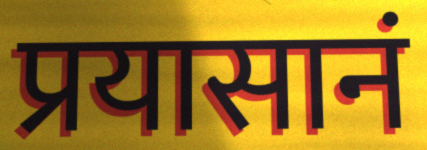
प्रयासानं